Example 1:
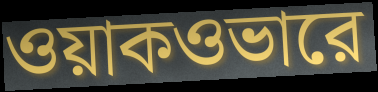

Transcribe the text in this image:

ওয়াকওভারে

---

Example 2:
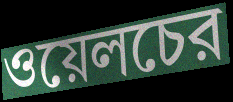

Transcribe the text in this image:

ওয়েলচের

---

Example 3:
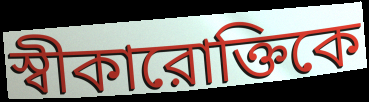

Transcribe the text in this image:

স্বীকারোক্তিকে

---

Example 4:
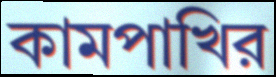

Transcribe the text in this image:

কামপাখির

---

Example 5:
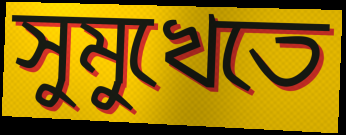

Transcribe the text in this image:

সুমুখেতে